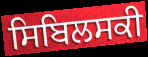
ਸਿਬਿਲਸਕੀ